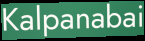
Kalpanabai